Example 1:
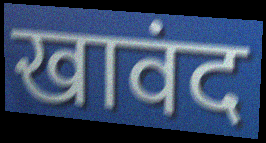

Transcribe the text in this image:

खावंद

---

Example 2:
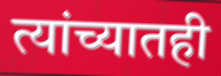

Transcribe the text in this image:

त्यांच्यातही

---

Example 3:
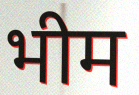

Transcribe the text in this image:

भीम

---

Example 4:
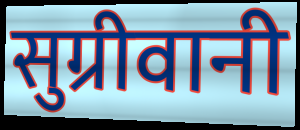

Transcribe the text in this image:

सुग्रीवानी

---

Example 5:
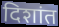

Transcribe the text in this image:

दिशांत